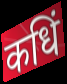
कधिं